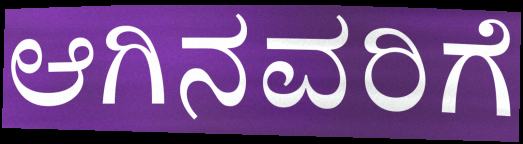
ಆಗಿನವರಿಗೆ